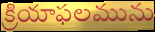
క్రియాఫలమును